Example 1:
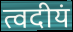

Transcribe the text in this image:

त्वदीयं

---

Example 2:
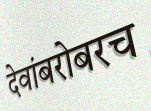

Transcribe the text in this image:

देवांबरोबरच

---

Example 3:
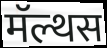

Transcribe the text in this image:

मॅल्थस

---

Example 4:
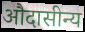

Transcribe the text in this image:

औदासीन्य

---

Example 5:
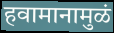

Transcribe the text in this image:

हवामानामुळं